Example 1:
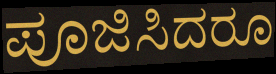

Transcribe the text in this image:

ಪೂಜಿಸಿದರೂ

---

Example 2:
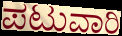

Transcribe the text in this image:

ಪಟುವಾರಿ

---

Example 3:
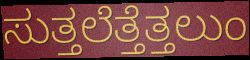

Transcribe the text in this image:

ಸುತ್ತಲೆತ್ತೆತ್ತಲುಂ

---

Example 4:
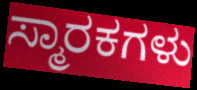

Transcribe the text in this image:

ಸ್ಮಾರಕಗಳು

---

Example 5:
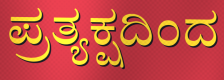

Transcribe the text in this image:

ಪ್ರತ್ಯಕ್ಷದಿಂದ